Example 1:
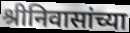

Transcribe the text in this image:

श्रीनिवासांच्या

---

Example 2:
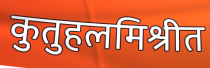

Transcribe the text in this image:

कुतुहलमिश्रीत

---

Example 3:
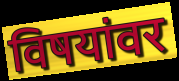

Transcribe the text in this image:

विषयांवर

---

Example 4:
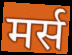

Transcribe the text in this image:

मर्स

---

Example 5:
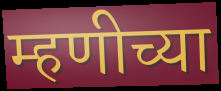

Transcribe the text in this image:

म्हणीच्या